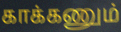
காக்கணும்